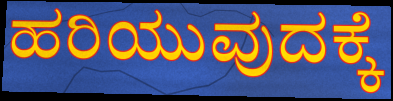
ಹರಿಯುವುದಕ್ಕೆ